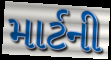
માર્ટની